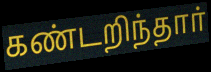
கண்டறிந்தார்